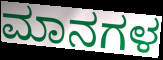
ಮಾನಗಳ